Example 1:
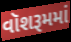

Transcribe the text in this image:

વૉશરૂમમાં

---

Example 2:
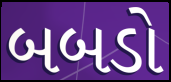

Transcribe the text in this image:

બબડો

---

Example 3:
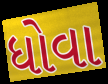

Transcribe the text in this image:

ધોવા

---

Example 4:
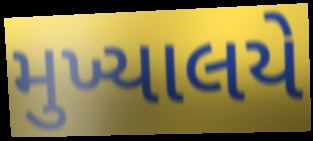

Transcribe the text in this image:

મુખ્યાલયે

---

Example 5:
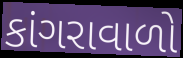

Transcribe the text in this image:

કાંગરાવાળો